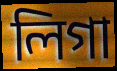
লিগা